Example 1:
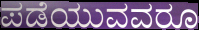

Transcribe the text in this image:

ಪಡೆಯುವವರೂ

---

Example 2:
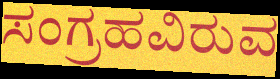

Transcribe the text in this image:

ಸಂಗ್ರಹವಿರುವ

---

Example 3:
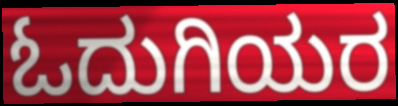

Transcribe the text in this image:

ಓದುಗಿಯರ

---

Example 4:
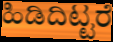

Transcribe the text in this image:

ಹಿಡಿದಿಟ್ಟರೆ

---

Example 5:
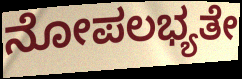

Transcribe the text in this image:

ನೋಪಲಭ್ಯತೇ